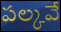
పల్కవే